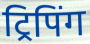
ट्रिपिंग